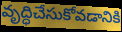
వృద్ధిచేసుకోవడానికి